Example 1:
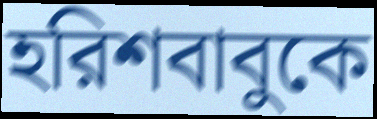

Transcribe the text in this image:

হরিশবাবুকে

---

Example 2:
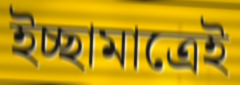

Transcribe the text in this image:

ইচ্ছামাত্রেই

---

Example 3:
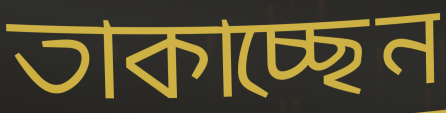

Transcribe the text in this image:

তাকাচ্ছেন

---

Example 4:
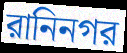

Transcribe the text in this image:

রানিনগর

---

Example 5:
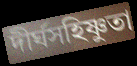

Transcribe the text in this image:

দীর্ঘসহিষ্ণুতা